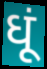
धूं